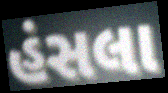
હંસલા